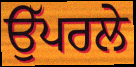
ਉੱਪਰਲੇ